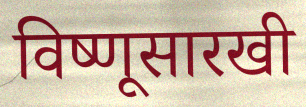
विष्णूसारखी